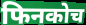
फिनकोच